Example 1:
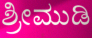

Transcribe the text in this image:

ಶ್ರೀಮುಡಿ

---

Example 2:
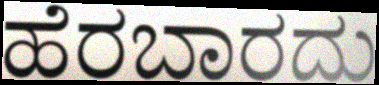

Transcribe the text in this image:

ಹೆರಬಾರದು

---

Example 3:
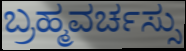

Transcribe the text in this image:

ಬ್ರಹ್ಮವರ್ಚಸ್ಸು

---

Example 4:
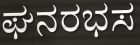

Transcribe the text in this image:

ಘನರಭಸ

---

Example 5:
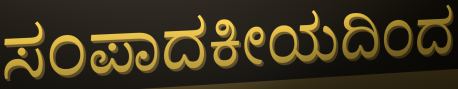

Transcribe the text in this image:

ಸಂಪಾದಕೀಯದಿಂದ